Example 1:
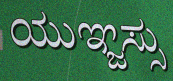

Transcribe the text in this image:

ಯುಞ್ಜಸ್ಸು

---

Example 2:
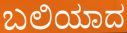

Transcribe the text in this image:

ಬಲಿಯಾದ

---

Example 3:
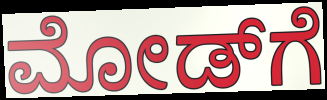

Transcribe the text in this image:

ಮೋಡ್‌ಗೆ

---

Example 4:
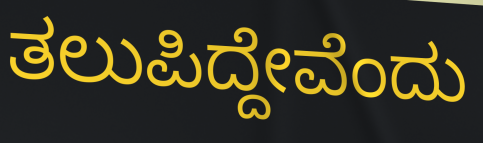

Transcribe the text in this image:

ತಲುಪಿದ್ದೇವೆಂದು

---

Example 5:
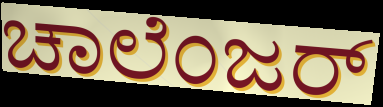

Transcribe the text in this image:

ಚಾಲೆಂಜರ್